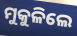
ମୁକୁଳିଲେ